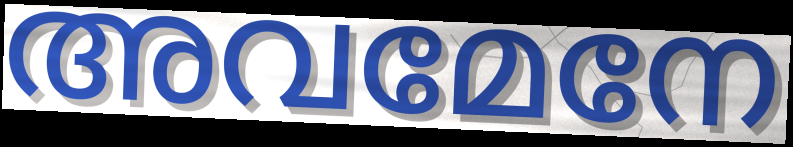
അവമേനേ